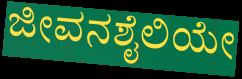
ಜೀವನಶೈಲಿಯೇ